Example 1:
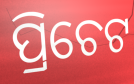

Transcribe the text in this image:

ପ୍ରିଚେଟ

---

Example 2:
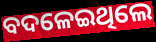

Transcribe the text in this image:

ବଦଳେଇଥିଲେ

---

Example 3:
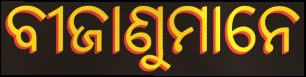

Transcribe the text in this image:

ବୀଜାଣୁମାନେ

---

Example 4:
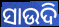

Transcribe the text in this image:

ସାଉଦି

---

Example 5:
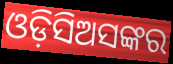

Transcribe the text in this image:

ଓଡ଼ିସିଅସଙ୍କର